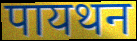
पायथन